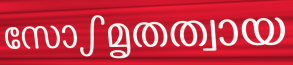
സോഽമൃതത്വായ